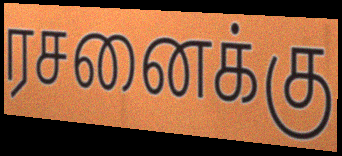
ரசனைக்கு